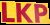
LKP